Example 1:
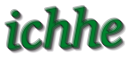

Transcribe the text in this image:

ichhe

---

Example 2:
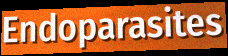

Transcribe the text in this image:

Endoparasites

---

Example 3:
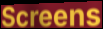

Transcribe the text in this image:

Screens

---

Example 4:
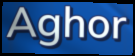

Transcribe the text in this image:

Aghor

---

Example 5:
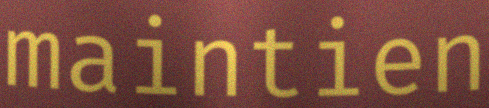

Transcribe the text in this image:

maintien